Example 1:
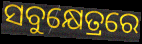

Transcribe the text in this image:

ସବୁକ୍ଷେତ୍ରରେ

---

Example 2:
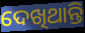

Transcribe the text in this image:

ଦେଖିଥାନ୍ତି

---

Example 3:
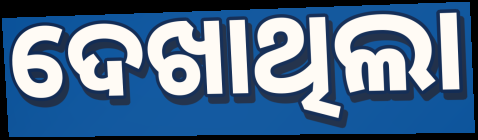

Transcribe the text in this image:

ଦେଖାଥିଲା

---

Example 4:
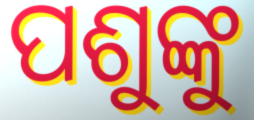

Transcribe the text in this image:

ପଶୁଙ୍କୁ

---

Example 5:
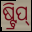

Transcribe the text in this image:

ଷ୍ଟ୍ରିପ୍